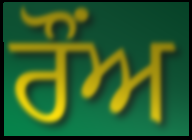
ਰੌਂਅ